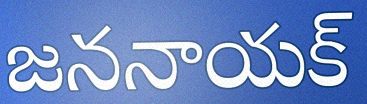
జననాయక్